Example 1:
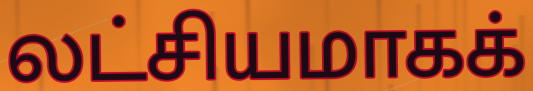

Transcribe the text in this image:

லட்சியமாகக்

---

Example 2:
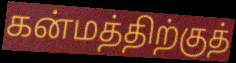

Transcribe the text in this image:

கன்மத்திற்குத்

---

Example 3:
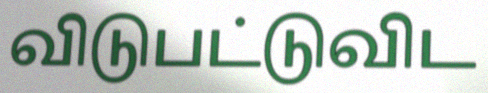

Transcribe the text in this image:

விடுபட்டுவிட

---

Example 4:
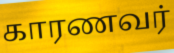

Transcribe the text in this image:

காரணவர்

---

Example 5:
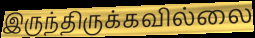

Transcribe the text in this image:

இருந்திருக்கவில்லை